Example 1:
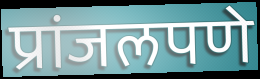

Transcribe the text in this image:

प्रांजलपणे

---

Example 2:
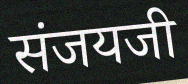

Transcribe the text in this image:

संजयजी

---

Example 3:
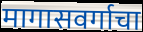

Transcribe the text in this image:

मागासवर्गाचा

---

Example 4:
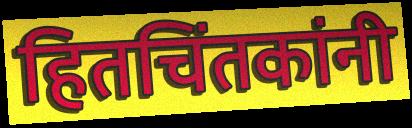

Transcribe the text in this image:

हितचिंतकांनी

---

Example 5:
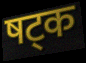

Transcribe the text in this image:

षट्क